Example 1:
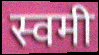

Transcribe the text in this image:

स्वमी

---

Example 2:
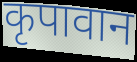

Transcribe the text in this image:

कृपावान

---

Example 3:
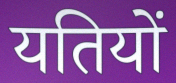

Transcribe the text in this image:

यतियों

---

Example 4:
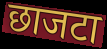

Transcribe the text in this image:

छाजटा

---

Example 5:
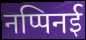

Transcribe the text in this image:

नप्पिनई